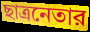
ছাত্রনেতার